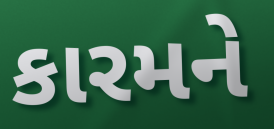
કારમને